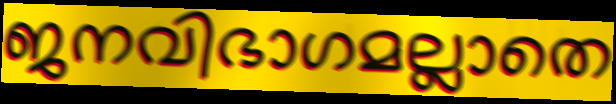
ജനവിഭാഗമല്ലാതെ